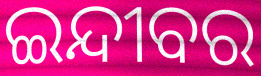
ଇନ୍ଦୀବର